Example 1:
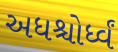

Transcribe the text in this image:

અધશ્ચોર્ધ્વં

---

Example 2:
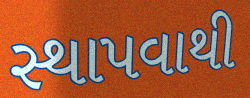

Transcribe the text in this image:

સ્થાપવાથી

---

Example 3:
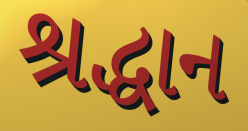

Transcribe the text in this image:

શ્રદ્ધાન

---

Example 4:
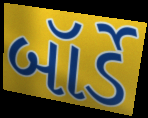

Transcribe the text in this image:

બૉર્ડે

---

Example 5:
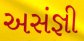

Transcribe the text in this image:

અસંજ્ઞી